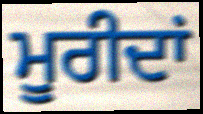
ਮੂਰੀਦਾਂ